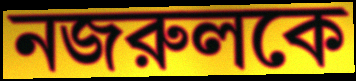
নজরুলকে